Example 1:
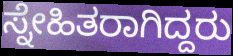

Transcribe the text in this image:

ಸ್ನೇಹಿತರಾಗಿದ್ದರು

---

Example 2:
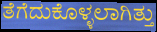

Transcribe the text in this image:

ತೆಗೆದುಕೊಳ್ಳಲಾಗಿತ್ತು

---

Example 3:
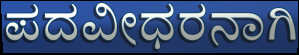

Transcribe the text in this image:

ಪದವೀಧರನಾಗಿ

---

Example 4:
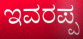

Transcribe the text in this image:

ಇವರಪ್ಪ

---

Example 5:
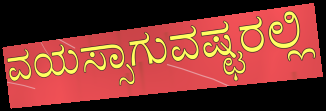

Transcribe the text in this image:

ವಯಸ್ಸಾಗುವಷ್ಟರಲ್ಲಿ